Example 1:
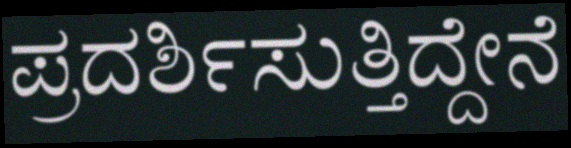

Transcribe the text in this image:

ಪ್ರದರ್ಶಿಸುತ್ತಿದ್ದೇನೆ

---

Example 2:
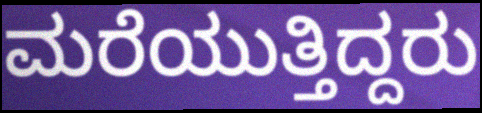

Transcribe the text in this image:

ಮರೆಯುತ್ತಿದ್ದರು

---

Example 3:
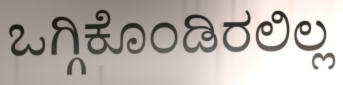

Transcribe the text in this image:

ಒಗ್ಗಿಕೊಂಡಿರಲಿಲ್ಲ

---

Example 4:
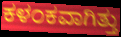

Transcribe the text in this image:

ಕಳಂಕವಾಗಿತ್ತು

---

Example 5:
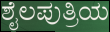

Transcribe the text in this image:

ಶೈಲಪುತ್ರಿಯ